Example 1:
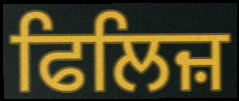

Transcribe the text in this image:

ਫਿਲਿਜ਼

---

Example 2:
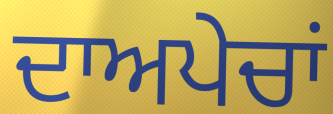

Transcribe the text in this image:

ਦਾਅਪੇਚਾਂ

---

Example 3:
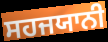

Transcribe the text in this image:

ਸਹਜਯਾਨੀ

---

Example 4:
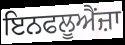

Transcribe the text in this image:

ਇਨਫਲੂਐਂਜ਼ਾ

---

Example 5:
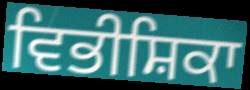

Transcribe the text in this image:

ਵਿਭੀਸ਼ਿਕਾ